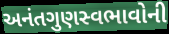
અનંતગુણસ્વભાવોની